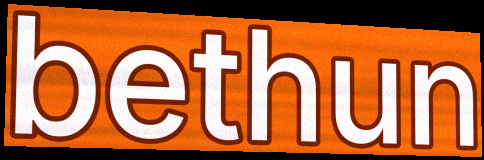
bethun